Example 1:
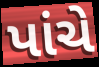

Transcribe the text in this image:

પાંચે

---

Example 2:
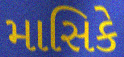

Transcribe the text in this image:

માસિકે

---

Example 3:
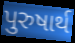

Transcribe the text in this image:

પુરુષાર્થ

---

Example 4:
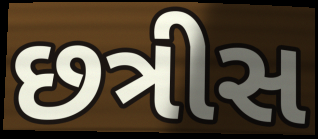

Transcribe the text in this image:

છત્રીસ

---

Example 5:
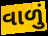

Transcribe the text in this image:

વાળું